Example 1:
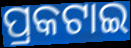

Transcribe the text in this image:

ପ୍ରକଟାଇ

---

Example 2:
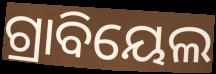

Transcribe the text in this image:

ଗ୍ରାବିୟେଲ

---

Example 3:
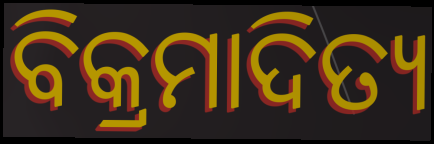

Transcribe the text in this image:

ବିକ୍ରମାଦିତ୍ୟ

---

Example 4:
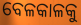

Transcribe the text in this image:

ବେଳକାଳକୁ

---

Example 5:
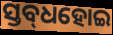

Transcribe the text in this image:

ସ୍ତବ୍‌ଧହୋଇ